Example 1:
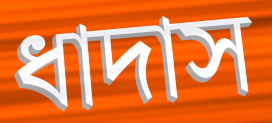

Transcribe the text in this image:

ধাদাস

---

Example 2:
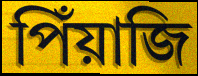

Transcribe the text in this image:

পিঁয়াজি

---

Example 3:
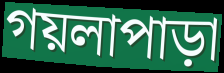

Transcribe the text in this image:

গয়লাপাড়া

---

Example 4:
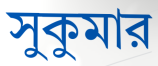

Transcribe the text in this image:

সুকুমার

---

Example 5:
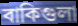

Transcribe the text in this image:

বাকিগুলা